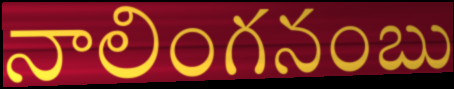
నాలింగనంబు